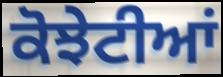
ਕੋਝੇਟੀਆਂ